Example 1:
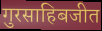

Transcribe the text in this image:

गुरसाहिबजीत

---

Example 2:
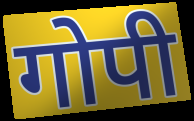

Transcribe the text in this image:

गोपी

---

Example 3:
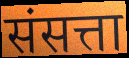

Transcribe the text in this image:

संसत्ता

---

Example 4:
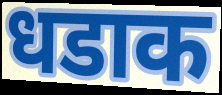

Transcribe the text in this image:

धडाक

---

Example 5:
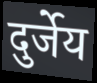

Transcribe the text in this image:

दुर्जेय